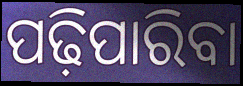
ପଢ଼ିପାରିବା